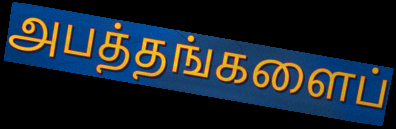
அபத்தங்களைப்